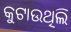
କୁଟାଉଥିଲି